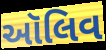
ઑલિવ